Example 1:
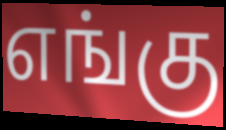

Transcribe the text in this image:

எங்கு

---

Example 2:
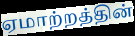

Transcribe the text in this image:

ஏமாற்றத்தின்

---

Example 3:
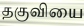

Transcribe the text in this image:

தகுவியை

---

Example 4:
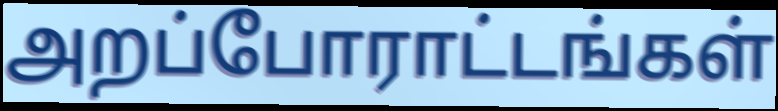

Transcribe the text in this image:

அறப்போராட்டங்கள்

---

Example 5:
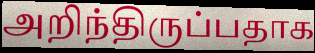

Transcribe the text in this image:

அறிந்திருப்பதாக